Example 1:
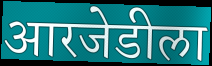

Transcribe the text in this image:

आरजेडीला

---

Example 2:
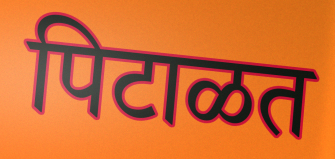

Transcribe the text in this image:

पिटाळत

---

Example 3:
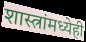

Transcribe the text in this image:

शास्त्रांमध्येही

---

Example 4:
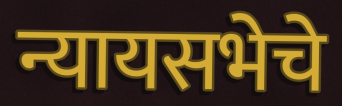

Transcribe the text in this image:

न्यायसभेचे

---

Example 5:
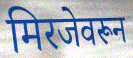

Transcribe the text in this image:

मिरजेवरून